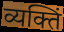
व्यक्तिं